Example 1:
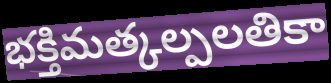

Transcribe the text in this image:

భక్తిమత్కల్పలతికా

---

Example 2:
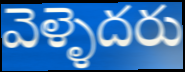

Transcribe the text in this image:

వెళ్ళెదరు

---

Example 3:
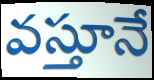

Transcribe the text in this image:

వస్తూనే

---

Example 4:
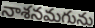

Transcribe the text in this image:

నాశనమగును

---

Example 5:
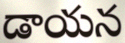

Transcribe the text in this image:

డాయన